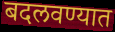
बदलवण्यात